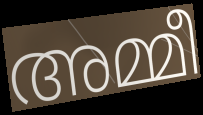
അമ്മീ